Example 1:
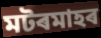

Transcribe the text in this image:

মটৰমাহৰ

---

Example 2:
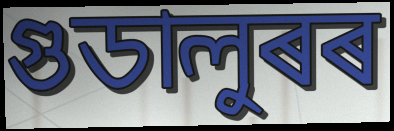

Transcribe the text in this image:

গুডালুৰৰ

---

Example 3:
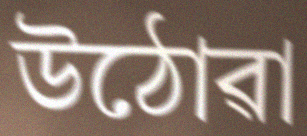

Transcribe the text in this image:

উঠোৱা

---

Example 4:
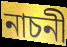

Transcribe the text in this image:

নাচনী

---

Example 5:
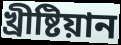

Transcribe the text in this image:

খ্ৰীষ্টিয়ান